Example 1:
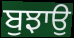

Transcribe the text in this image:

ਬੁਝਾਉ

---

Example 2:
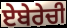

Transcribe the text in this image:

ਏਬੇਰੇਚੀ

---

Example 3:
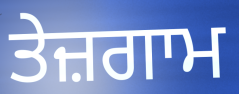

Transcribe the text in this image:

ਤੇਜ਼ਗਾਮ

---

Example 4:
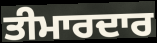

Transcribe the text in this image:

ਤੀਮਾਰਦਾਰ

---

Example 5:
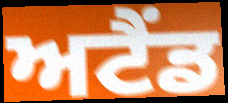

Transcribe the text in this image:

ਅਟੈਂਡ